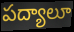
పద్యాలూ